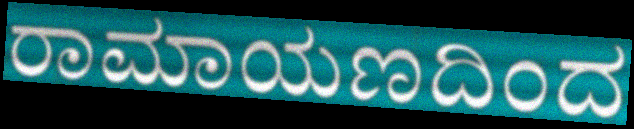
ರಾಮಾಯಣದಿಂದ